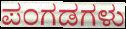
ಪಂಗಡಗಳು